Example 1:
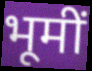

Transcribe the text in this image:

भूमीं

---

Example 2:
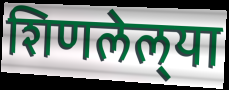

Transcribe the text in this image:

शिणलेल्या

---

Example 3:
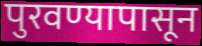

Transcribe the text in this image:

पुरवण्यापासून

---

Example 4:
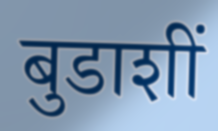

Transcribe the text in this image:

बुडाशीं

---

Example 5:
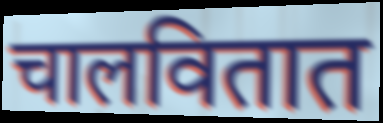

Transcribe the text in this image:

चालवितात